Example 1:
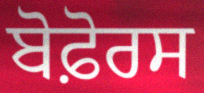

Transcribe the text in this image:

ਬੋਫ਼ੋਰਸ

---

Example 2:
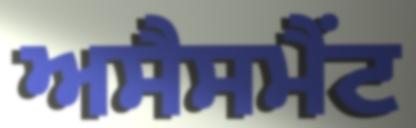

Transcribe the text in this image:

ਅਸੈਸਮੈਂਟ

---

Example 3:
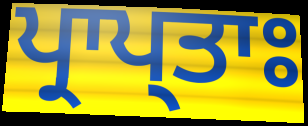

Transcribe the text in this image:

ਪ੍ਰਾਪ੍ਤਾਃ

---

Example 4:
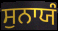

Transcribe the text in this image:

ਸੁਨਾਯੰ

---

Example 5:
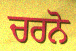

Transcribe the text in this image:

ਚਰਨੋ